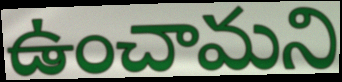
ఉంచామని